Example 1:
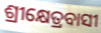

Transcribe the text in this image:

ଶ୍ରୀକ୍ଷେତ୍ରବାସୀ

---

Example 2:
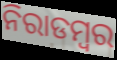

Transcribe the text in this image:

ନିରାଡମ୍ଵର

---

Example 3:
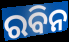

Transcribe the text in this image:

ରବିନ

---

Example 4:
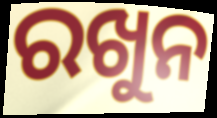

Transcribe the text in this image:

ରଖୁନ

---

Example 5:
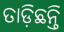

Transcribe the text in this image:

ତାଡ଼ିଛନ୍ତି